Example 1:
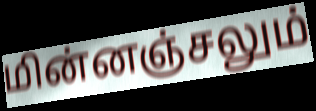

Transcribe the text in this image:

மின்னஞ்சலும்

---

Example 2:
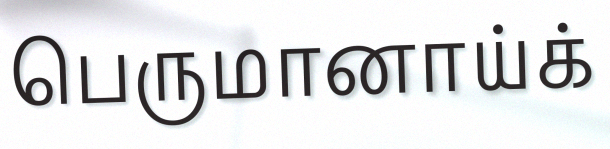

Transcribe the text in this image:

பெருமானாய்க்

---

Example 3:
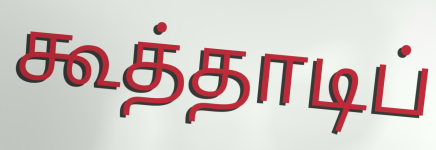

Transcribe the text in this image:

கூத்தாடிப்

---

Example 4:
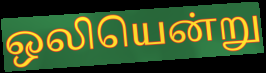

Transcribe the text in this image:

ஒலியென்று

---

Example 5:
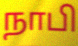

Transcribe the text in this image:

நாபி